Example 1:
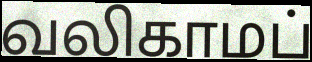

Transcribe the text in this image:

வலிகாமப்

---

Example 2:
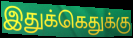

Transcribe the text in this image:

இதுக்கெதுக்கு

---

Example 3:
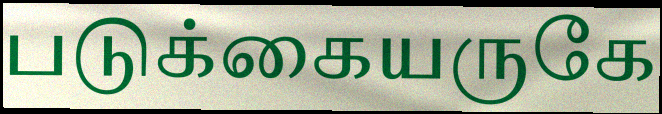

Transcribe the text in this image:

படுக்கையருகே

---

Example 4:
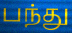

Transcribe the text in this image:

பந்து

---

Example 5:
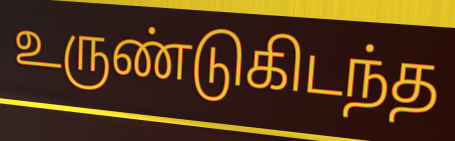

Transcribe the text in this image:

உருண்டுகிடந்த